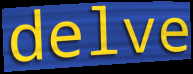
delve